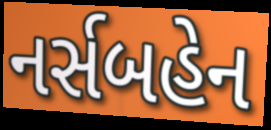
નર્સબહેન